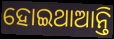
ହୋଇଥାଆନ୍ତି